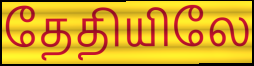
தேதியிலே